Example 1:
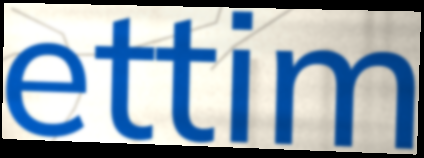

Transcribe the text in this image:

ettim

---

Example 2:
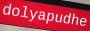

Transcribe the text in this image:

dolyapudhe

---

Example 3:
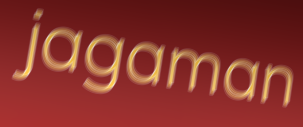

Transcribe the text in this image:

jagaman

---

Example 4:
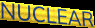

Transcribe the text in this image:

NUCLEAR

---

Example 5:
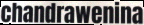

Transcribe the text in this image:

chandrawenina